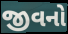
જીવનો